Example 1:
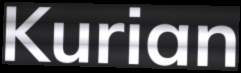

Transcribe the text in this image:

Kurian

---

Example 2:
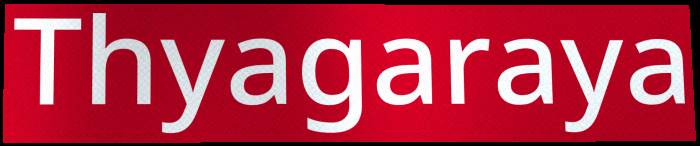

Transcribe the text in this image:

Thyagaraya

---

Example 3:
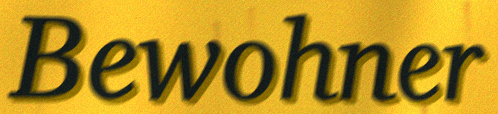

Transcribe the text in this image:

Bewohner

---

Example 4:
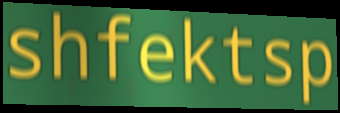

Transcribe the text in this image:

shfektsp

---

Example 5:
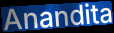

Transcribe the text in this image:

Anandita